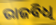
ରାଜବିଧି